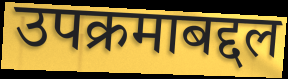
उपक्रमाबद्दल